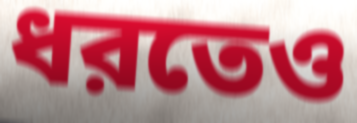
ধরতেও